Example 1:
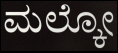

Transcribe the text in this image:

ಮಲ್ಕೋ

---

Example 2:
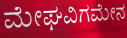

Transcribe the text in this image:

ಮೇಘವಿಗಮೇನ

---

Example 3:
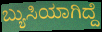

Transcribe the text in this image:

ಬ್ಯುಸಿಯಾಗಿದ್ದೆ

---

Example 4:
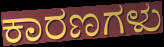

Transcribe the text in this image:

ಕಾರಣಗಳು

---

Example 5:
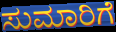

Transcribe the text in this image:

ಸುಮಾರಿಗೆ